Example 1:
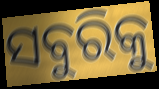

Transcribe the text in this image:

ସବୁରିକୁ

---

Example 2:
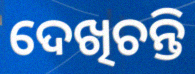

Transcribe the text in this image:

ଦେଖିଚନ୍ତି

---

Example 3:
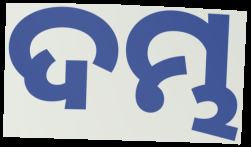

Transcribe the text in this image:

ଦମ୍ଭ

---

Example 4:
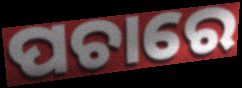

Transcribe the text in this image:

ପଚାରେ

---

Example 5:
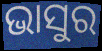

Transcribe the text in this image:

ଭାସୁର